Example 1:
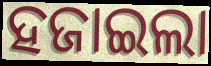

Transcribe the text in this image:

ହଜାଇଲା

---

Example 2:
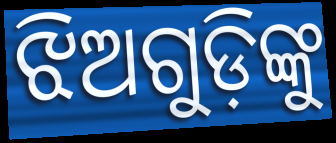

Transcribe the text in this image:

ଝିଅଗୁଡ଼ିଙ୍କୁ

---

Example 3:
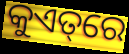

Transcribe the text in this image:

କୁଏତ୍‌ରେ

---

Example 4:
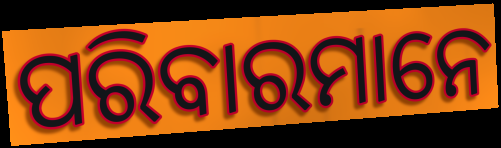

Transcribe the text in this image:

ପରିବାରମାନେ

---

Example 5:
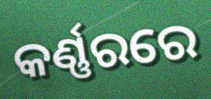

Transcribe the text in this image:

କର୍ଣ୍ଣରରେ